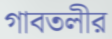
গাবতলীর